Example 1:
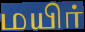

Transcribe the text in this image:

மயிர்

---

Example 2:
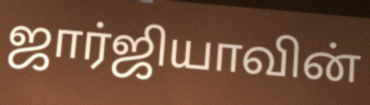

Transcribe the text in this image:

ஜார்ஜியாவின்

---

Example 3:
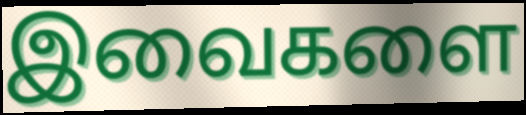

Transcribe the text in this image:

இவைகளை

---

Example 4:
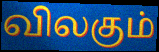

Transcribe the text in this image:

விலகும்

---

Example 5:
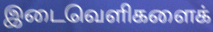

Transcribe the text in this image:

இடைவெளிகளைக்